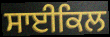
ਸਾਈਕਿਲ